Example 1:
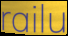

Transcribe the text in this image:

railu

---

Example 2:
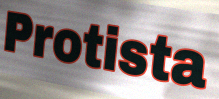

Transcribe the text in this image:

Protista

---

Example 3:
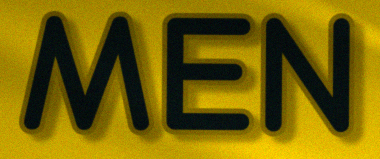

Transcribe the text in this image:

MEN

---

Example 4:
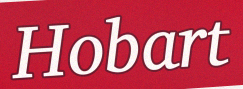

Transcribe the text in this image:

Hobart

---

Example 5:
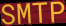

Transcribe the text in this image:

SMTP